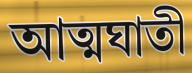
আত্মঘাতী